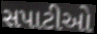
સપાટીઓ